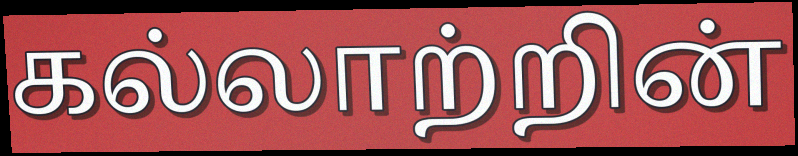
கல்லாற்றின்